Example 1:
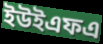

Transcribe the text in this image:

ইউইএফএ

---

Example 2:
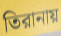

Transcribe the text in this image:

তিরানায়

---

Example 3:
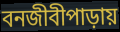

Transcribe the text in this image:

বনজীবীপাড়ায়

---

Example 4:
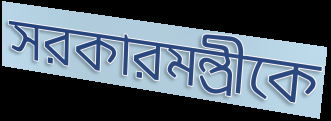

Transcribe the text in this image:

সরকারমন্ত্রীকে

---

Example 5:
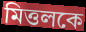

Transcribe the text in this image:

মিত্তলকে